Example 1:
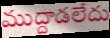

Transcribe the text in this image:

ముద్దాడలేదు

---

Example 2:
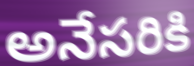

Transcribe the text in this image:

అనేసరికి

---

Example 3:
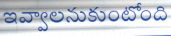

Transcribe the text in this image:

ఇవ్వాలనుకుంటోంది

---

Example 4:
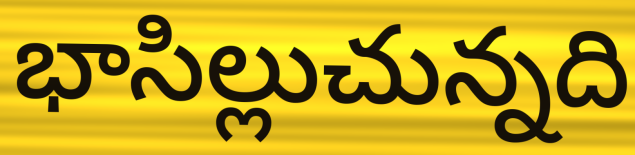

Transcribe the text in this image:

భాసిల్లుచున్నది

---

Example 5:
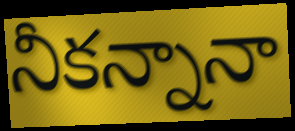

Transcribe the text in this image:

నీకన్నానా